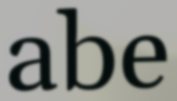
abe